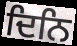
ਦਿਨਿ